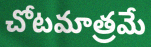
చోటమాత్రమే